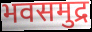
भवसमुद्र